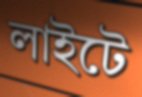
লাইটে